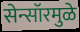
सेन्सॉरमुळे